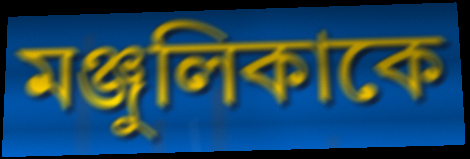
মঞ্জুলিকাকে